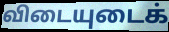
விடையுடைக்